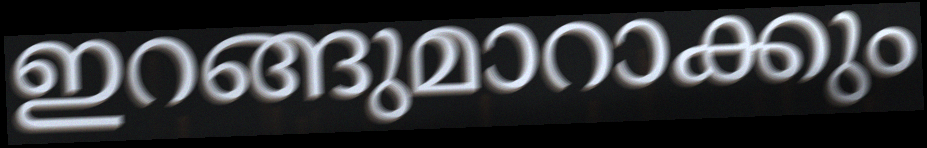
ഇറങ്ങുമാറാക്കും